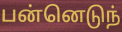
பன்னெடுந்